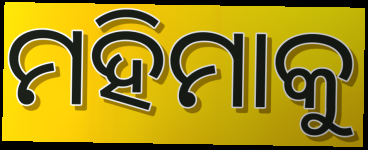
ମହିମାକୁ